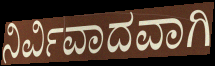
ನಿರ್ವಿವಾದವಾಗಿ